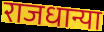
राजधान्या